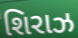
શિરાઝ